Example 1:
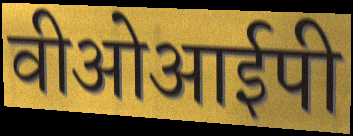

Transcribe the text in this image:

वीओआईपी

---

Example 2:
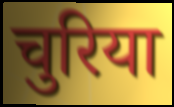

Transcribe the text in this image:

चुरिया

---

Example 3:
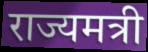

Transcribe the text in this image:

राज्यमत्री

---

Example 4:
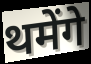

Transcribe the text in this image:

थमेंगे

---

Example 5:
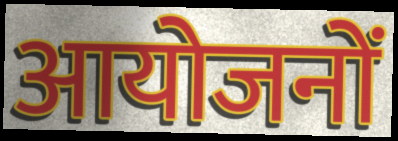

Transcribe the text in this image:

आयोजनों